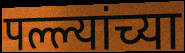
पल्ल्यांच्या